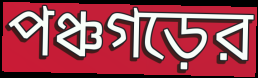
পঞ্চগড়ের